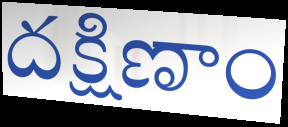
దక్షిణాం